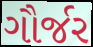
ગૌર્જર